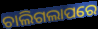
ଚାଲିଗଲାପରେ